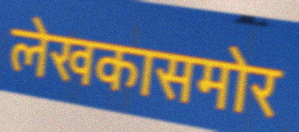
लेखकासमोर